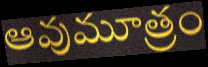
ఆవుమూత్రం